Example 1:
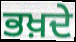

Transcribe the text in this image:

ਭਖ਼ਦੇ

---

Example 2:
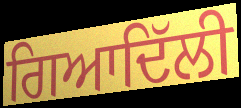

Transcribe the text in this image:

ਗਿਆਦਿੱਲੀ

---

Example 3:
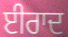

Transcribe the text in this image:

ਈਰਾਦ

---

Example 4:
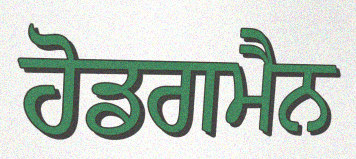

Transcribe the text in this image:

ਹੋਡਗਮੈਨ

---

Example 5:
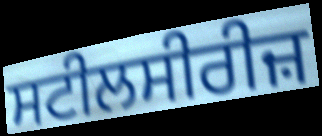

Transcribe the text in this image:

ਸਟੀਲਸੀਰੀਜ਼